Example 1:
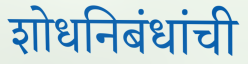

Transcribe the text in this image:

शोधनिबंधांची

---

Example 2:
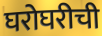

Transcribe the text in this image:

घरोघरीची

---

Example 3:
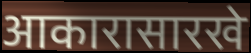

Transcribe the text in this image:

आकारासारखे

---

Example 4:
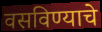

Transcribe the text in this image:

वसविण्याचे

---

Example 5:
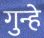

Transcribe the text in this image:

गुन्हे